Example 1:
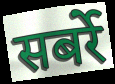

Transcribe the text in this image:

सबर्रे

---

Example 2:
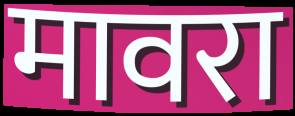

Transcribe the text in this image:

मावरा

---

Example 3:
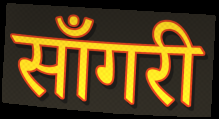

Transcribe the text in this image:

साँगरी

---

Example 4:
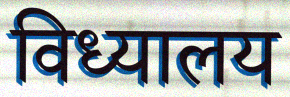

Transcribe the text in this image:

विध्यालय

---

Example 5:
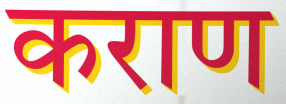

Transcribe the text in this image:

कराण